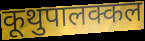
कूथुपालक्कल